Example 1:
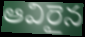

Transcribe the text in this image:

ఆవిరైన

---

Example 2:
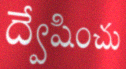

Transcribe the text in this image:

ద్వేషించు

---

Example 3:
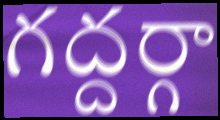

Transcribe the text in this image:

గద్దర్గా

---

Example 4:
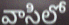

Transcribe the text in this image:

వాసిలో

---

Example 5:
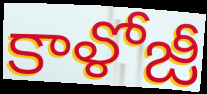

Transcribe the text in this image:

కాళోజీ